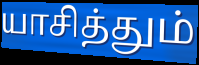
யாசித்தும்